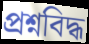
প্রশ্নবিদ্ধ